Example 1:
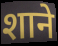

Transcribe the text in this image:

शाने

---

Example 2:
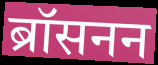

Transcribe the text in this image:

ब्रॉसनन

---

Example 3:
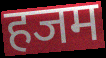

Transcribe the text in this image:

हजम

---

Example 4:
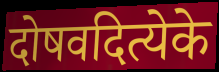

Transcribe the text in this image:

दोषवदित्येके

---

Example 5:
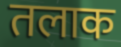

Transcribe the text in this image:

तलाक